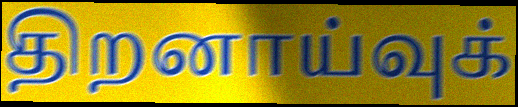
திறனாய்வுக்